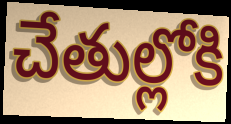
చేతుల్లోకి